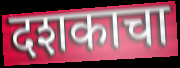
दशकाचा